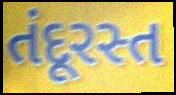
તંદૂરસ્ત